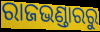
ରାଜଭଣ୍ଡାରରୁ